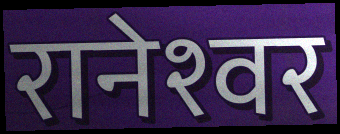
रानेश्वर